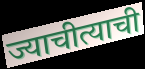
ज्याचीत्याची